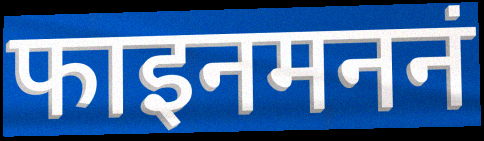
फाइनमननं